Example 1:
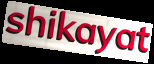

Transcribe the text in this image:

shikayat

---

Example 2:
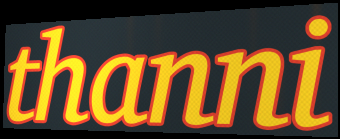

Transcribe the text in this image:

thanni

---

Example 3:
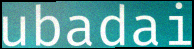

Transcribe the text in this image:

ubadai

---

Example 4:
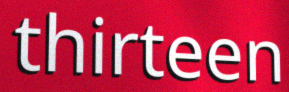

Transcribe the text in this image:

thirteen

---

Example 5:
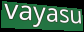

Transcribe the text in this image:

vayasu